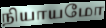
நியாயமோ